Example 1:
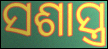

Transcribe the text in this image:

ସଶାସ୍ତ୍ର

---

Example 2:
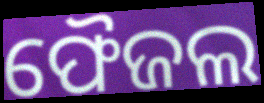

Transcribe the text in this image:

ଫୈଜଲ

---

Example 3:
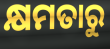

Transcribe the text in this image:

କ୍ଷମତାରୁ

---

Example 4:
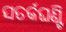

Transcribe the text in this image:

ସତର୍କଘଣ୍ଟି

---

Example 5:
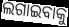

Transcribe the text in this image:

ଲଗାଇବାକୁ